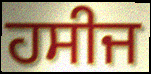
ਹਸੀਜ